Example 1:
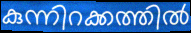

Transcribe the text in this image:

കുന്നിറക്കത്തിൽ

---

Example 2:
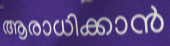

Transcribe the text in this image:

ആരാധിക്കാൻ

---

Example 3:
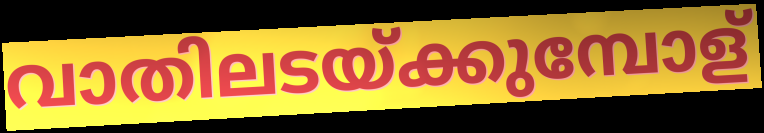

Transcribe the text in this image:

വാതിലടയ്ക്കുമ്പോള്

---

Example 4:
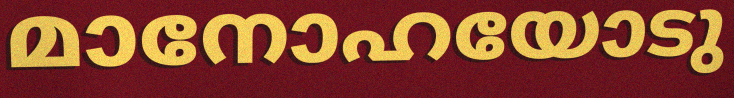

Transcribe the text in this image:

മാനോഹയോടു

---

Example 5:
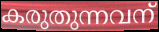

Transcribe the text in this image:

കരുതുന്നവന്